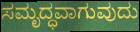
ಸಮೃದ್ಧವಾಗುವುದು